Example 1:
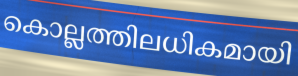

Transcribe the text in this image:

കൊല്ലത്തിലധികമായി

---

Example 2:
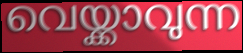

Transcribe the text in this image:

വെയ്ക്കാവുന്ന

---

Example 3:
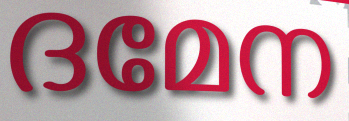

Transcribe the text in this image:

ദമേന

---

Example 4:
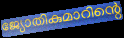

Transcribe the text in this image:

ജ്യോതികുമാറിന്റെ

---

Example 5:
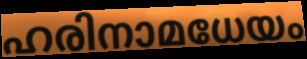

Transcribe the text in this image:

ഹരിനാമധേയം